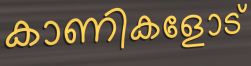
കാണികളോട്